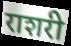
राशरी